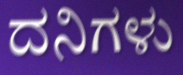
ದನಿಗಳು